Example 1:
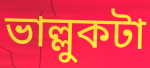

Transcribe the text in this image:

ভাল্লুকটা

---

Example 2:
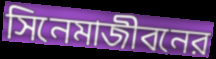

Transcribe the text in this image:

সিনেমাজীবনের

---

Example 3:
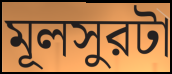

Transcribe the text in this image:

মূলসুরটা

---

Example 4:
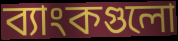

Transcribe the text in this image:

ব্যাংকগুলো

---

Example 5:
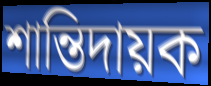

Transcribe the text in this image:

শান্তিদায়ক